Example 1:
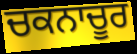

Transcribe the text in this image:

ਚਕਨਾਚੂਰ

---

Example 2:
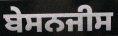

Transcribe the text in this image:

ਬੇਸਨਜੀਸ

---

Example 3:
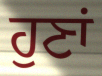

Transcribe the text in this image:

ਹੁਣਾਂ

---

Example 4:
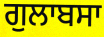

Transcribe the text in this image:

ਗੁਲਾਬਸਾ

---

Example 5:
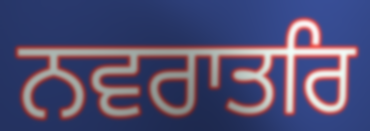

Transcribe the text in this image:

ਨਵਰਾਤਰਿ